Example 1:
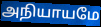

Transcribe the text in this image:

அநியாயமே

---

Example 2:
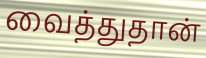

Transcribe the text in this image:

வைத்துதான்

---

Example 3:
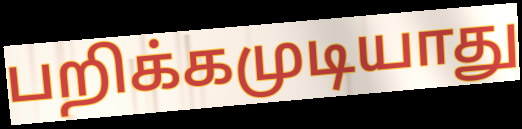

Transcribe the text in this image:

பறிக்கமுடியாது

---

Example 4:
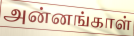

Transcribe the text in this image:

அன்னங்காள்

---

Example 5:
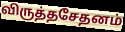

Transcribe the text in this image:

விருத்தசேதனம்